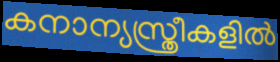
കനാന്യസ്ത്രീകളിൽ